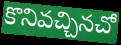
కొనివచ్చినచో